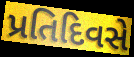
પ્રતિદિવસે